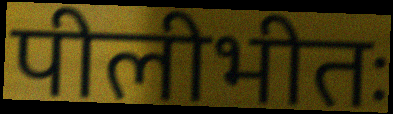
पीलीभीतः